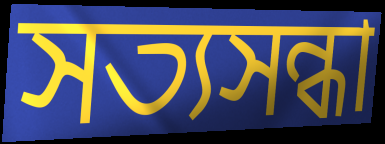
সত্যসন্ধা